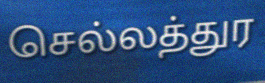
செல்லத்துர